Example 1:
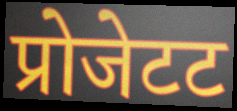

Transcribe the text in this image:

प्रोजेटट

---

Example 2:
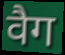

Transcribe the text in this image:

वैग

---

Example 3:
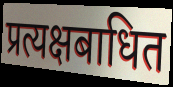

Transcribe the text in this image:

प्रत्यक्षबाधित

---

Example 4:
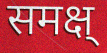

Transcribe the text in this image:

समक्ष्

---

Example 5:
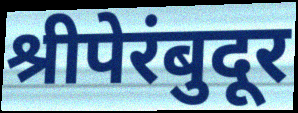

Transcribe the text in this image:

श्रीपेरंबुदूर